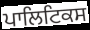
ਪਾਲਿਟਿਕਸ